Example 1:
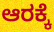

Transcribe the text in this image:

ಆರಕ್ಕೆ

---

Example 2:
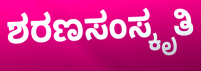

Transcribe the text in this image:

ಶರಣಸಂಸ್ಕೃತಿ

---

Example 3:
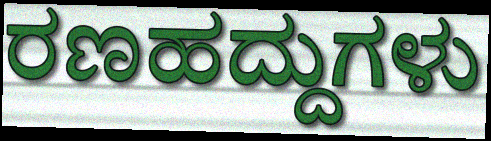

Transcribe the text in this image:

ರಣಹದ್ದುಗಳು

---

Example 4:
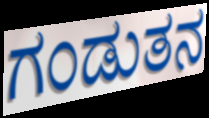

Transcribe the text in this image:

ಗಂಡುತನ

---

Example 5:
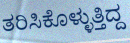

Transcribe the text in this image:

ತರಿಸಿಕೊಳ್ಳುತ್ತಿದ್ದ